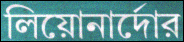
লিয়োনার্দোর